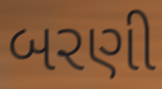
બરણી